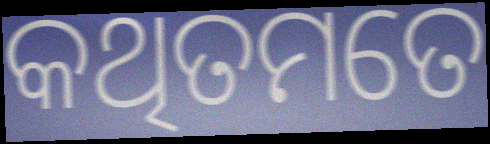
କଥିତମତେ